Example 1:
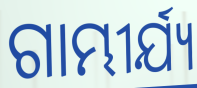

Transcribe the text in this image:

ଗାମ୍ଭୀର୍ଯ୍ୟ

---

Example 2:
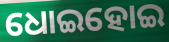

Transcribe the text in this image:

ଧୋଇହୋଇ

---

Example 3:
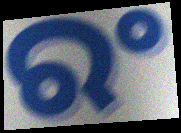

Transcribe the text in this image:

ରଂ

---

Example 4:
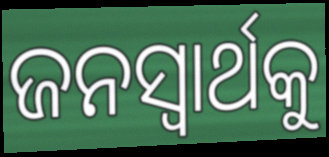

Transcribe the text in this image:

ଜନସ୍ବାର୍ଥକୁ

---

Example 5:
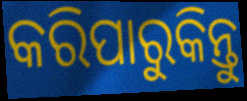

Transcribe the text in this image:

କରିପାରୁକିନ୍ତୁ